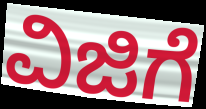
ವಿಜಿಗೆ